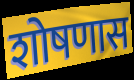
शोषणास